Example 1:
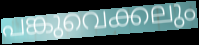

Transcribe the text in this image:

പങ്കുവെക്കലും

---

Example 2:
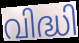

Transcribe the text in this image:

വിദ്ധി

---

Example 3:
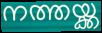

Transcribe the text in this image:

നത്തയ്ക്ക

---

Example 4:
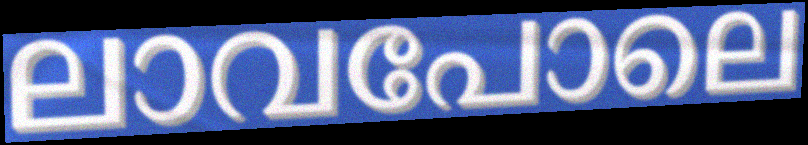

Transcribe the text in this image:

ലാവപോലെ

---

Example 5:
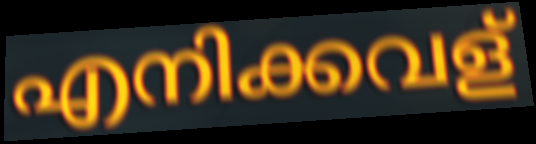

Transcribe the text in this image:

എനിക്കവള്